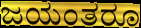
ಜಯಂತರೂ